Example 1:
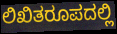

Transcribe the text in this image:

ಲಿಖಿತರೂಪದಲ್ಲಿ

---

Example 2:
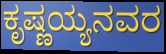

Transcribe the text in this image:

ಕೃಷ್ಣಯ್ಯನವರ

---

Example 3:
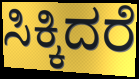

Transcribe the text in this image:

ಸಿಕ್ಕಿದರೆ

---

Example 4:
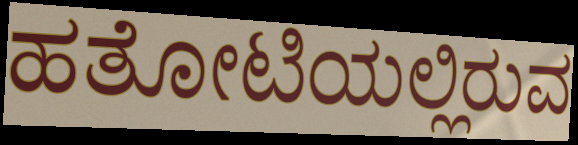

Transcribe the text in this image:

ಹತೋಟಿಯಲ್ಲಿರುವ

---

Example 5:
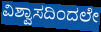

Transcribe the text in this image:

ವಿಶ್ವಾಸದಿಂದಲೇ